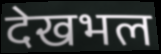
देखभल